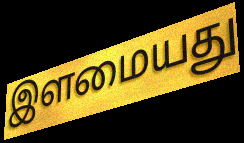
இளமையது